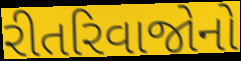
રીતરિવાજોનો